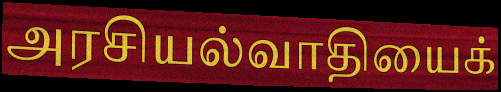
அரசியல்வாதியைக்